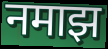
नमाझ